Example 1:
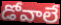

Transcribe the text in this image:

డోవాలే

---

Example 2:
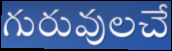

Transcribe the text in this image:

గురువులచే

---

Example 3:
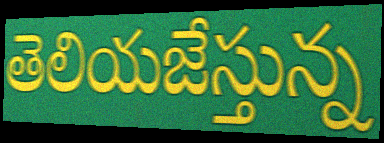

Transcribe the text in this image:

తెలియజేస్తున్న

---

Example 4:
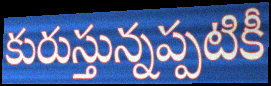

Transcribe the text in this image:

కురుస్తున్నప్పటికీ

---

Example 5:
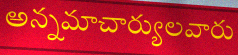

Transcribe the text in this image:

అన్నమాచార్యులవారు